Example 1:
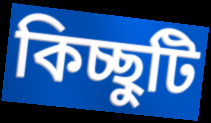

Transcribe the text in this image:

কিচ্ছুটি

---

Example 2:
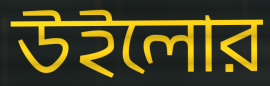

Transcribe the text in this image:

উইলোর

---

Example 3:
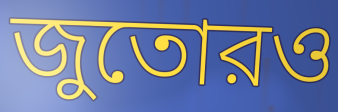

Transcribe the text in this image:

জুতোরও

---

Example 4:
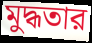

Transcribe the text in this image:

মুদ্ধতার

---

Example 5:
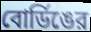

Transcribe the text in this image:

বোর্ডিঙের